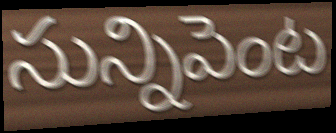
సున్నిపెంట